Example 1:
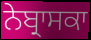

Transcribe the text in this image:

ਨੇਬ੍ਰਾਸਕਾ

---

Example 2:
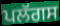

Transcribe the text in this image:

ਪਲੱਗਸ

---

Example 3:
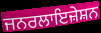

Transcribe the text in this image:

ਜਨਰਲਾਇਜ਼ੇਸ਼ਨ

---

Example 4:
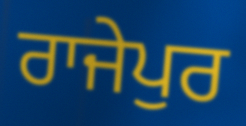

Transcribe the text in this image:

ਰਾਜੇਪੁਰ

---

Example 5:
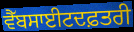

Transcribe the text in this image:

ਵੈੱਬਸਾਈਟਦਫ਼ਤਰੀ